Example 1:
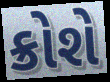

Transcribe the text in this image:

ક્રોશે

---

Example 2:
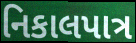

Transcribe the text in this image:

નિકાલપાત્ર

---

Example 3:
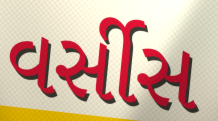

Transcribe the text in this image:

વર્સીસ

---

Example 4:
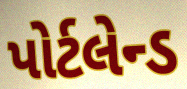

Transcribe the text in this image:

પોર્ટલેન્ડ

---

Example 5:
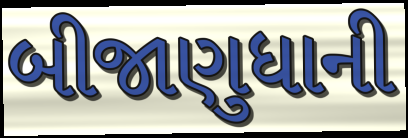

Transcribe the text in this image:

બીજાણુધાની